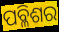
ପବ୍ଳିଶର